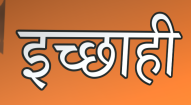
इच्छाही